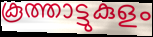
കൂത്താട്ടുകുളം